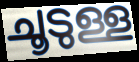
ചൂടുള്ള